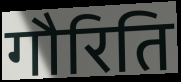
गौरिति